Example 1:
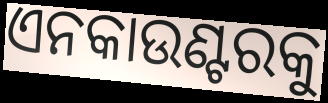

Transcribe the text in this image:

ଏନକାଉଣ୍ଟରକୁ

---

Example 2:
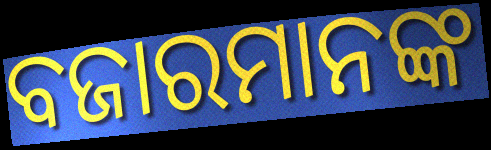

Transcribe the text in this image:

ବଜାରମାନଙ୍କ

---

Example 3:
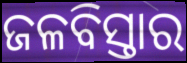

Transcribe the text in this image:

ଜଳବିସ୍ତାର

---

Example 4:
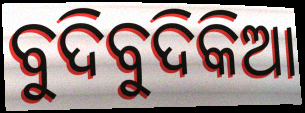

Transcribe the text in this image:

ବୁଦିବୁଦିକିଆ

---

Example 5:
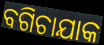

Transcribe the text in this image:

ବଗିଚାଯାକ